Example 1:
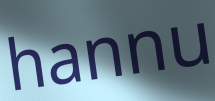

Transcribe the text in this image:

hannu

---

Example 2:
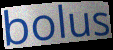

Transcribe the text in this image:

bolus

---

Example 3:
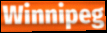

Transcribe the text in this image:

Winnipeg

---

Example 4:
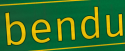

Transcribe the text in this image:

bendu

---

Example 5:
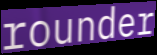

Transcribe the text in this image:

rounder